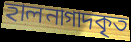
হালনাগাদকৃত